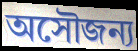
অসৌজন্য